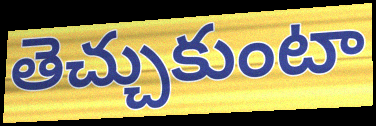
తెచ్చుకుంటా